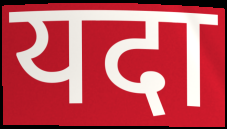
यदा